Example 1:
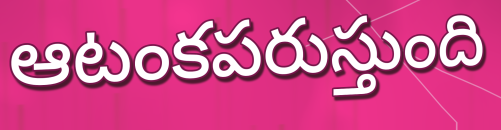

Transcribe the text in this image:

ఆటంకపరుస్తుంది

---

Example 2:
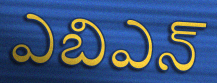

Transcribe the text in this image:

ఎబిఎన్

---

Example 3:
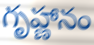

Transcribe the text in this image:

గృహ్ణానం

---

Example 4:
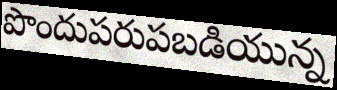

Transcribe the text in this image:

పొందుపరుపబడియున్న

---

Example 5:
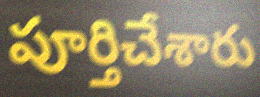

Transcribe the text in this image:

పూర్తిచేశారు